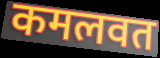
कमलवत